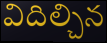
విదిల్చిన